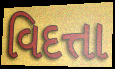
વિદત્તા